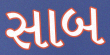
સાબ